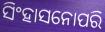
ସିଂହାସନୋପରି